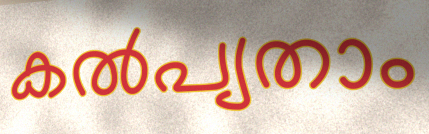
കൽപ്യതാം